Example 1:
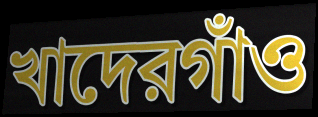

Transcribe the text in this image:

খাদেরগাঁও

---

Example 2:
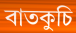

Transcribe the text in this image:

বাতকুচি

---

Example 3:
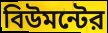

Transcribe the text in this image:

বিউমন্টের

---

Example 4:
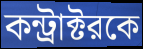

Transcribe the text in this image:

কন্ট্রাক্টরকে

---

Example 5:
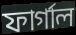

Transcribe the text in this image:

ফার্গাল